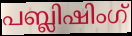
പബ്ലിഷിംഗ്